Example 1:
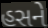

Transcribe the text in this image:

હસને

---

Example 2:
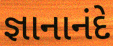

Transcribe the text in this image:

જ્ઞાનાનંદે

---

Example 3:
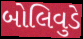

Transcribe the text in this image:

બોલિવુડે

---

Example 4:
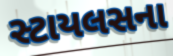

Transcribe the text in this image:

સ્ટાયલસના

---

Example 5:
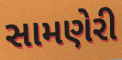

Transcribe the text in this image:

સામણેરી